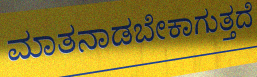
ಮಾತನಾಡಬೇಕಾಗುತ್ತದೆ